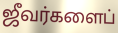
ஜீவர்களைப்